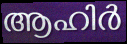
ആഹിർ